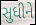
સુધીને